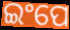
ଇଂପେ